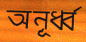
অনূর্ধ্ব